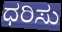
ಧರಿಸು